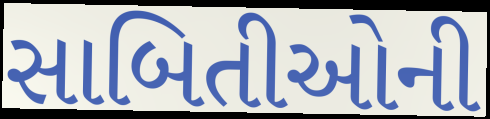
સાબિતીઓની